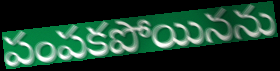
పంపకపోయినను